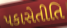
પકાસેતીતિ